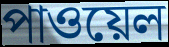
পাওয়েল